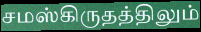
சமஸ்கிருதத்திலும்